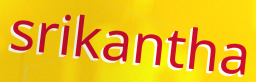
srikantha